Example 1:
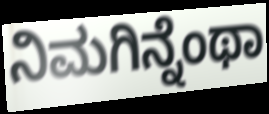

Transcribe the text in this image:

ನಿಮಗಿನ್ನೆಂಥಾ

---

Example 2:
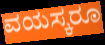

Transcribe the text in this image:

ವಯಸ್ಕರೂ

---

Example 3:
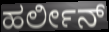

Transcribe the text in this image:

ಹರ್ಲೀನ್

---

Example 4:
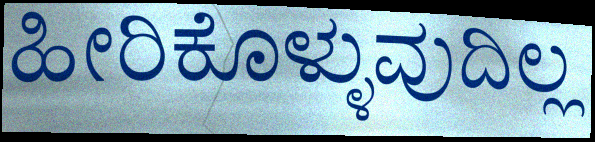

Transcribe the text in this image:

ಹೀರಿಕೊಳ್ಳುವುದಿಲ್ಲ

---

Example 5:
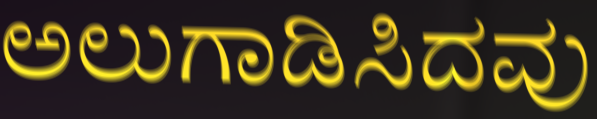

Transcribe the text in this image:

ಅಲುಗಾಡಿಸಿದವು